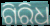
ଗିରିଧ